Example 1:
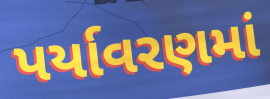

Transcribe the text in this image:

પર્યાવરણમાં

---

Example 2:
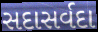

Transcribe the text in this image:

સદાસર્વદા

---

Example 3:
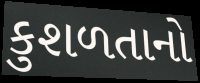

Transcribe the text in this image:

કુશળતાનો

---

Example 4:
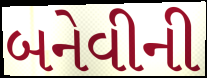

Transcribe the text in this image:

બનેવીની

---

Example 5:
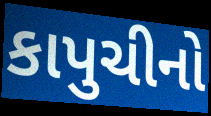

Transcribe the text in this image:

કાપુચીનો